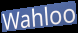
Wahloo